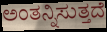
ಅಂತನ್ನಿಸುತ್ತದೆ